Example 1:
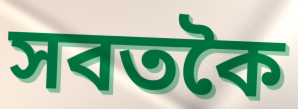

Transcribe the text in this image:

সবতকৈ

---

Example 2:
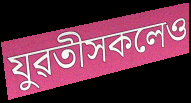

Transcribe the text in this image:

যুৱতীসকলেও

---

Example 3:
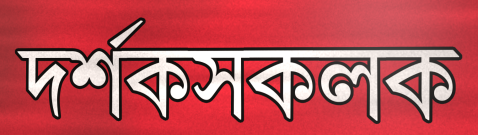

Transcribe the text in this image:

দৰ্শকসকলক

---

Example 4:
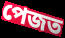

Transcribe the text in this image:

পেজত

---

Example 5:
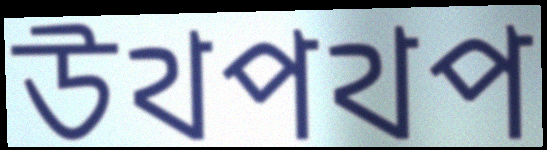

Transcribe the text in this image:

উথপথপ